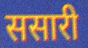
ससारी